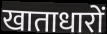
खाताधारों